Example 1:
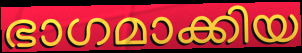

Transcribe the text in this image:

ഭാഗമാക്കിയ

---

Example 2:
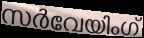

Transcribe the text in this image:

സർവേയിംഗ്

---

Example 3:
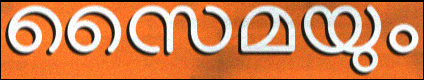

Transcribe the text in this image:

സൈമയും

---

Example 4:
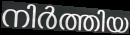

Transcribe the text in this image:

നിർത്തിയ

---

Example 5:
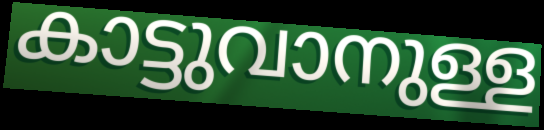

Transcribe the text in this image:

കാട്ടുവാനുള്ള